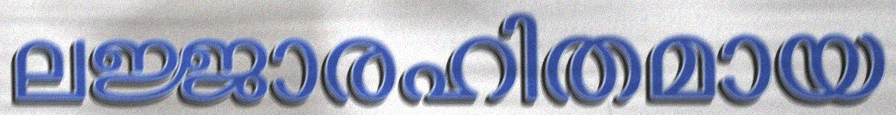
ലജ്ജാരഹിതമായ